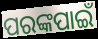
ପରଙ୍କପାଇଁ